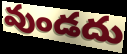
వుండదు